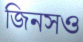
জিনসও